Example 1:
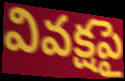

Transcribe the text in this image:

వివక్షపై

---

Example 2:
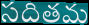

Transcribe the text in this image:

సదితమ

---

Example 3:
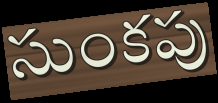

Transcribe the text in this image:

సుంకపు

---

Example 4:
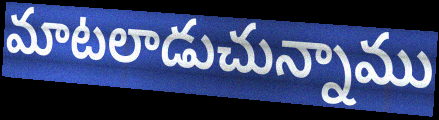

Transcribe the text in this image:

మాటలాడుచున్నాము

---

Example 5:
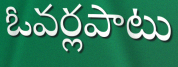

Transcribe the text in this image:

ఓవర్లపాటు